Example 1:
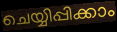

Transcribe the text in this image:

ചെയ്യിപ്പിക്കാം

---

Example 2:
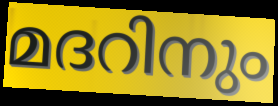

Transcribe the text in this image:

മദറിനും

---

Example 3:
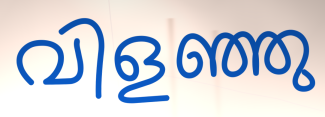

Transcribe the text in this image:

വിളഞ്ഞു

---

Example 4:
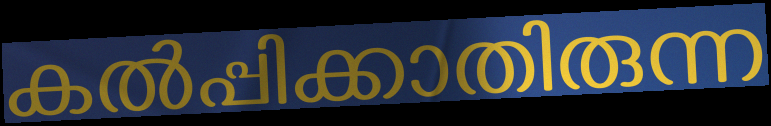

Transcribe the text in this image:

കൽപ്പിക്കാതിരുന്ന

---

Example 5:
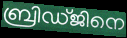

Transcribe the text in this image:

ബ്രിഡ്ജിനെ